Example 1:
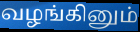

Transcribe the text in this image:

வழங்கினும்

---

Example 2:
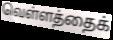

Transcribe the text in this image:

வெள்ளத்தைக்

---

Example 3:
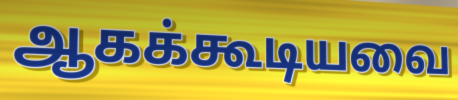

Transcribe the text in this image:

ஆகக்கூடியவை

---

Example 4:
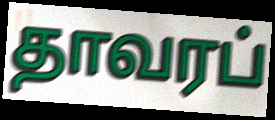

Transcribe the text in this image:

தாவரப்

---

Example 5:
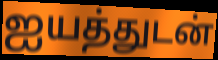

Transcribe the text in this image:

ஐயத்துடன்